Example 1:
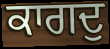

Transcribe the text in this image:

ਕਾਗਦੁ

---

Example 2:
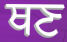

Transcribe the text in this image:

ਥਣ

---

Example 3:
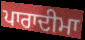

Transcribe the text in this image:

ਪਾਰਾਦੀਮਾ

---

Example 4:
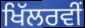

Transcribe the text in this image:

ਖਿੱਲਰਵੀਂ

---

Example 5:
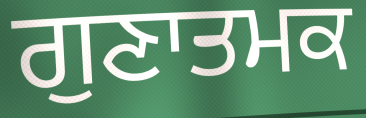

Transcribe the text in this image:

ਗੁਣਾਤਮਕ